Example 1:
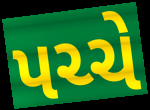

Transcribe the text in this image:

પચ્ચે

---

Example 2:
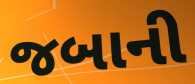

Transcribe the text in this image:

જબાની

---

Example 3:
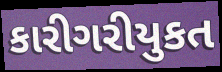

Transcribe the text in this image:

કારીગરીયુકત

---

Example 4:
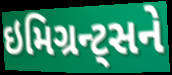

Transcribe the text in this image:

ઇમિગ્રન્ટ્સને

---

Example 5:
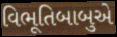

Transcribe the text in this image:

વિભૂતિબાબુએ